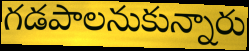
గడపాలనుకున్నారు